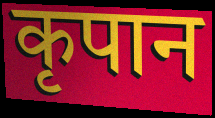
कृपान